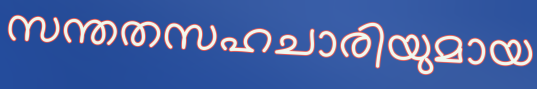
സന്തതസഹചാരിയുമായ